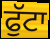
ਫੁੱਟਾ